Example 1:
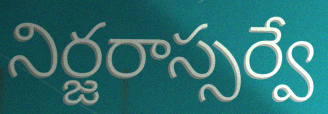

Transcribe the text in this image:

నిర్జరాస్సర్వే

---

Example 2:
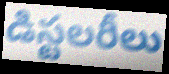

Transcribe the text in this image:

డిస్టలరీలు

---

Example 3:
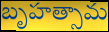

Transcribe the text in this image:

బృహత్సామ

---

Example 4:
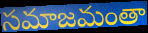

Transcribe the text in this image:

సమాజమంతా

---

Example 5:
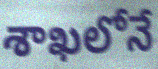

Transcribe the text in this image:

శాఖలోనే